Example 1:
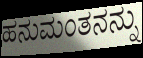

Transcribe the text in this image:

ಹನುಮಂತನನ್ನು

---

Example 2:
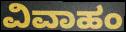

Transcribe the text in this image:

ವಿವಾಹಂ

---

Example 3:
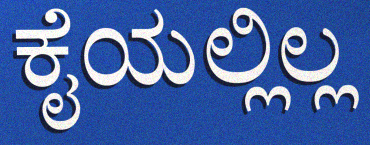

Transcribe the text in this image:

ಕೈಯಲ್ಲಿಲ್ಲ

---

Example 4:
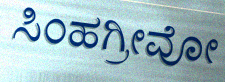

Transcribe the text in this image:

ಸಿಂಹಗ್ರೀವೋ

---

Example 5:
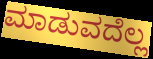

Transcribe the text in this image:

ಮಾಡುವದೆಲ್ಲ